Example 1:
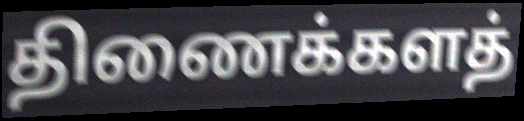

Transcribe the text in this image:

திணைக்களத்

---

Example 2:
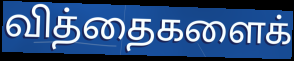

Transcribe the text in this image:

வித்தைகளைக்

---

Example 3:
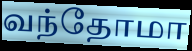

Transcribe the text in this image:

வந்தோமா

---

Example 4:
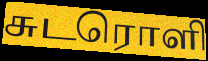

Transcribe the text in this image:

சுடரொளி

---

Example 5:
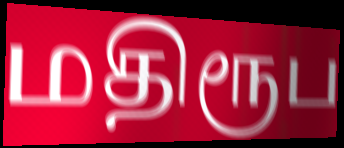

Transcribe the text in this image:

மதிரூப